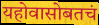
यहोवासोबतचं